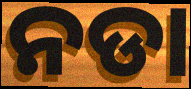
ନଡା